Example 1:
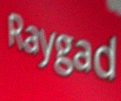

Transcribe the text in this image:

Raygad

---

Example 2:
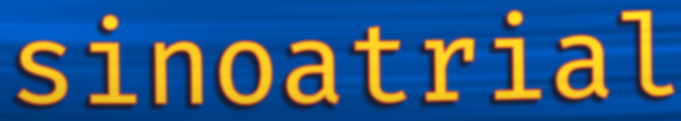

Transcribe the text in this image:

sinoatrial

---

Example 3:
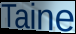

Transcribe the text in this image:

Taine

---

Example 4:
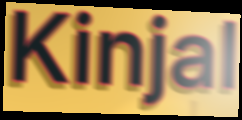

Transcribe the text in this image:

Kinjal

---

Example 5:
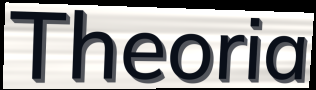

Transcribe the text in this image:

Theoria